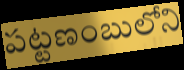
పట్టణంబులోని